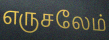
எருசலேம்